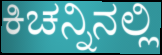
ಕಿಚನ್ನಿನಲ್ಲಿ